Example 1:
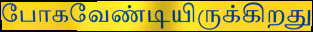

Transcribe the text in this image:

போகவேண்டியிருக்கிறது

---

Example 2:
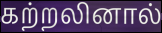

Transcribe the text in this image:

கற்றலினால்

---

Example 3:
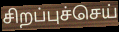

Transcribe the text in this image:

சிறப்புச்செய்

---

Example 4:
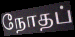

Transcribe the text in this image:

நோதப்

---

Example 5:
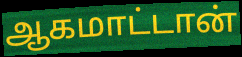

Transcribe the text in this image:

ஆகமாட்டான்